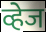
व्हेज